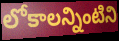
లోకాలన్నింటిని